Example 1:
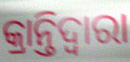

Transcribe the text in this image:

କ୍ରାନ୍ତିଦ୍ୱାରା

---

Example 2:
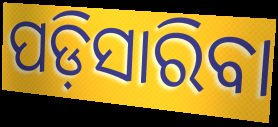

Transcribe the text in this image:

ପଡ଼ିସାରିବା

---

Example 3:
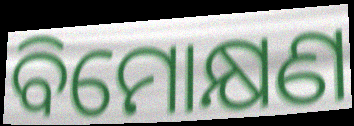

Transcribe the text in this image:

ବିମୋକ୍ଷଣ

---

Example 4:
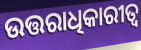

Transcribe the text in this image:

ଉତ୍ତରାଧିକାରୀତ୍ଵ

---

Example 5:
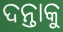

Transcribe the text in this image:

ଦନ୍ତାକୁ